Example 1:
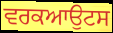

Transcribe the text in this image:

ਵਰਕਆਉਟਸ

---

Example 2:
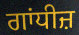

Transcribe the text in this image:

ਗਾਂਧੀਜ਼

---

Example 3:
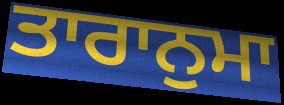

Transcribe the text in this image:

ਤਾਰਾਨੁਮਾ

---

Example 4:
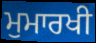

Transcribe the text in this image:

ਮੁਮਾਰਖੀ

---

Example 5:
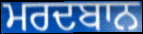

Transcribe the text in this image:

ਮਰਦਬਾਨ